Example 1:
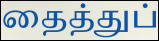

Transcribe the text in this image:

தைத்துப்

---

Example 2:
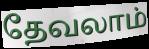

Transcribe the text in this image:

தேவலாம்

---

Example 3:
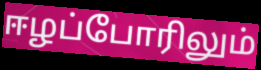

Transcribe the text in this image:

ஈழப்போரிலும்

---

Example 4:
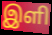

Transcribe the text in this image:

இளி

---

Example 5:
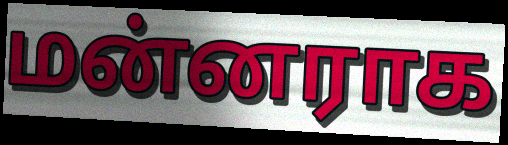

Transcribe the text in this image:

மன்னராக